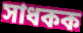
সাধকক